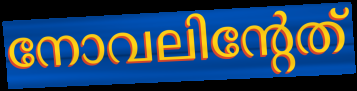
നോവലിന്റേത്